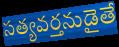
సత్యవర్తనుడైతే